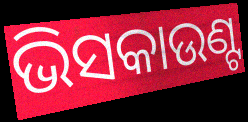
ଭିସକାଉଣ୍ଟ